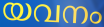
യവനം